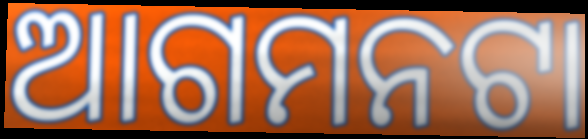
ଆଗମନଟା